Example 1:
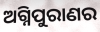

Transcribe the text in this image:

ଅଗ୍ନିପୁରାଣର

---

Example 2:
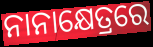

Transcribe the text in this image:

ନାନାକ୍ଷେତ୍ରରେ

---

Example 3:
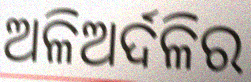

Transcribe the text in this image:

ଅଳିଅର୍ଦଳିର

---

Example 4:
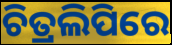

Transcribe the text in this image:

ଚିତ୍ରଲିପିରେ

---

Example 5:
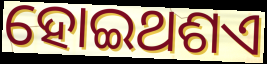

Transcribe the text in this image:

ହୋଇଥଶଏ